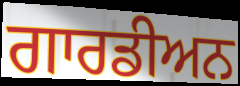
ਗਾਰਡੀਅਨ